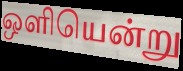
ஒளியென்று